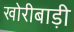
खोरीबाड़ी